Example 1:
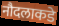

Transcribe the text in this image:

नौदलाकडे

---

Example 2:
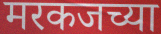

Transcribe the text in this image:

मरकजच्या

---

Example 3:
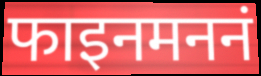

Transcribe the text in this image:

फाइनमननं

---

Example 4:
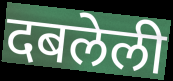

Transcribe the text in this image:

दबलेली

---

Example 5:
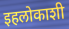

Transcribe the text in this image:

इहलोकाशी